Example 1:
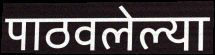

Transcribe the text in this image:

पाठवलेल्या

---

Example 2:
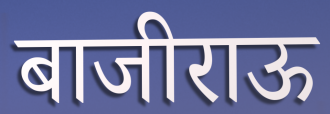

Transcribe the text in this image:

बाजीराऊ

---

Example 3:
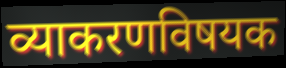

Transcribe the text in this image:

व्याकरणविषयक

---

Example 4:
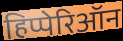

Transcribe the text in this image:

हिप्पेरिऑन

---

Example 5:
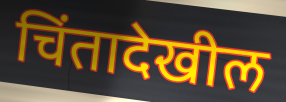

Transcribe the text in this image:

चिंतादेखील